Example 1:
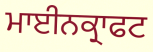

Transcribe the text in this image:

ਮਾਈਨਕ੍ਰਾਫਟ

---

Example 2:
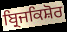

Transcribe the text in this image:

ਬ੍ਰਿਜਕਿਸ਼ੋਰ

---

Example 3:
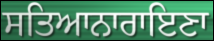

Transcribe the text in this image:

ਸਤਿਆਨਾਰਾਇਣਾ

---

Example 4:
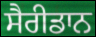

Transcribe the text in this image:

ਸੈਰੀਡਾਨ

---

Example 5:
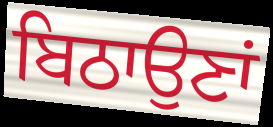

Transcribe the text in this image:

ਬਿਠਾਉਣਾਂ